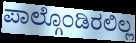
ಪಾಲ್ಗೊಂಡಿರಲಿಲ್ಲ